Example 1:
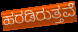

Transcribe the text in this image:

ಹರಡಿರುತ್ತವೆ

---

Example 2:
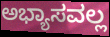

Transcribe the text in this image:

ಅಭ್ಯಾಸವಲ್ಲ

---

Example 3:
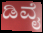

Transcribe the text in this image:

ಡಿವೈ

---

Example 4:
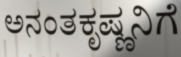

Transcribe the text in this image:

ಅನಂತಕೃಷ್ಣನಿಗೆ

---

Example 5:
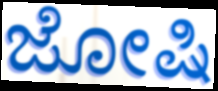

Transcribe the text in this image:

ಜೋಷಿ